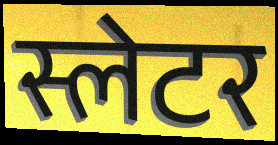
स्लेटर